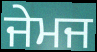
ਜੇਮਜ